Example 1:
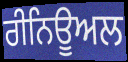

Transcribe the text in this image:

ਰੀਨਿਊਅਲ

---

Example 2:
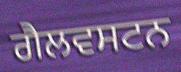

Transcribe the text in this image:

ਗੈਲਵਸਟਨ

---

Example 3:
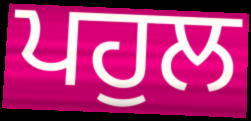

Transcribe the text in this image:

ਪਹੁਲ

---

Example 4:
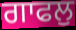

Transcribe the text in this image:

ਗਾਫਲੁ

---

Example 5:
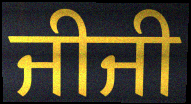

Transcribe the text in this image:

ਜੀਜੀ